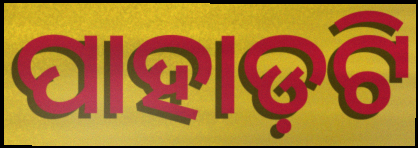
ପାହାଡ଼ଟି